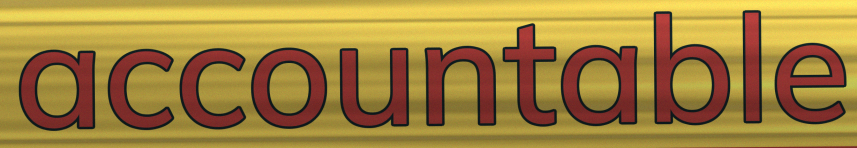
accountable